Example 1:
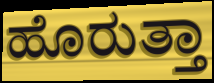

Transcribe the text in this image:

ಹೊರುತ್ತಾ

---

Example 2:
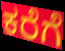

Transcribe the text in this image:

ಕರೆಗೆ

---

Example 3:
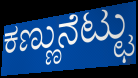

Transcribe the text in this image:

ಕಣ್ಣುನೆಟ್ಟು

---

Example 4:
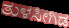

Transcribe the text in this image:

ತುಳಸೀಗಿಡ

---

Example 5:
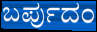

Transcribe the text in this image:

ಬರ್ಪುದಂ